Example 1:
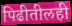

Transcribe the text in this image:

पिढीतीलही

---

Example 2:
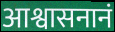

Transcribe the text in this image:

आश्वासनानं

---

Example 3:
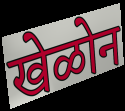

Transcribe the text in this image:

खेळोन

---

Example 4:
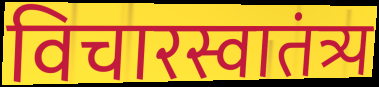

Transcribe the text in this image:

विचारस्वातंत्र्य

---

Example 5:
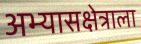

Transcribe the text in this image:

अभ्यासक्षेत्राला